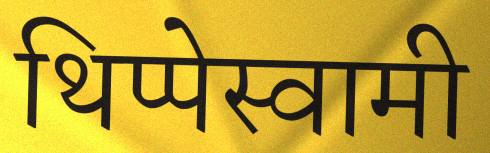
थिप्पेस्वामी